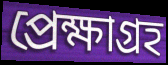
প্রেক্ষাগ্রহ